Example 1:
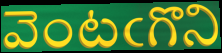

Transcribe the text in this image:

వెంటఁగొని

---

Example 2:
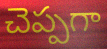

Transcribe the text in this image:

చెప్పగా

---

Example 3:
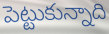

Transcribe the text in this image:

పెట్టుకున్నాది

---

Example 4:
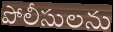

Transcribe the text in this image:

పోలీసులను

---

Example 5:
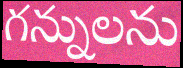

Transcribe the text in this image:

గన్నులను